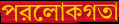
পরলোকগতা